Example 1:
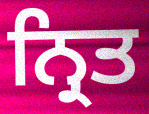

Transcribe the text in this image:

ਨ੍ਰਿਤ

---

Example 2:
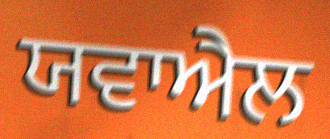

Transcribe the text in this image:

ਯਵਾਐਲ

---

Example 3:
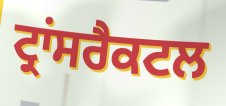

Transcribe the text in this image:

ਟ੍ਰਾਂਸਰੈਕਟਲ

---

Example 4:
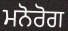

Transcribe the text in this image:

ਮਨੋਰੋਗ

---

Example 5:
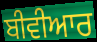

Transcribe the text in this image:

ਬੀਵੀਆਰ